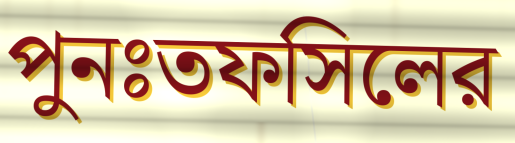
পুনঃতফসিলের